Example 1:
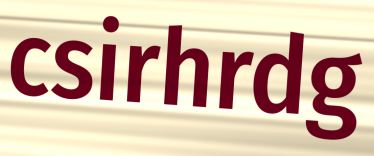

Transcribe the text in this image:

csirhrdg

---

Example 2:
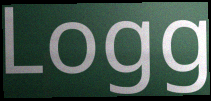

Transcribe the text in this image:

Logg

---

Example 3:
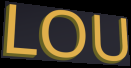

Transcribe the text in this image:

LOU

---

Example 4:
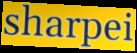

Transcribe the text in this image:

sharpei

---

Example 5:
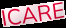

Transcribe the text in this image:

ICARE